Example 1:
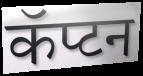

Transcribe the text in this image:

कॅप्टन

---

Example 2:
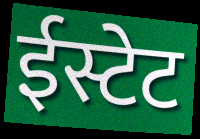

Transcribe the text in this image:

ईस्टेट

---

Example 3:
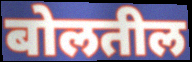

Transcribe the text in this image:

बोलतील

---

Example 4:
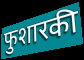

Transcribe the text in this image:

फुशारकी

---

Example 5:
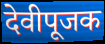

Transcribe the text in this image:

देवीपूजक